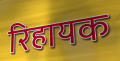
रिहायक